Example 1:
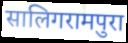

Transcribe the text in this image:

सालिगरामपुरा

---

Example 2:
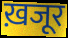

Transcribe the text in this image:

ख़जूर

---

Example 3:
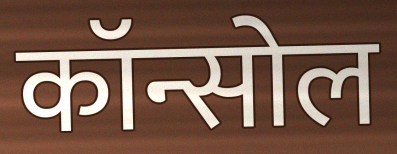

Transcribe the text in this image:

कॉन्सोल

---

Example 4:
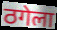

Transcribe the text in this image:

ठगेला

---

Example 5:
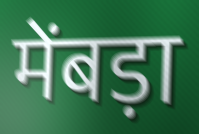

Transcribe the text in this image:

मेंबड़ा